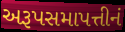
અરૂપસમાપત્તીનં